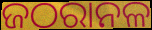
ଜଠରାନଳ